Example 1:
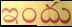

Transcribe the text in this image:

ఇందు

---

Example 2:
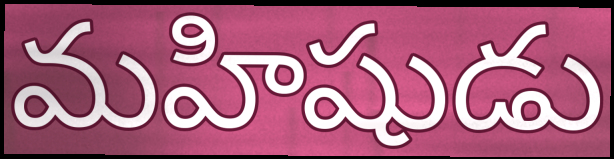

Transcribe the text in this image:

మహిషుడు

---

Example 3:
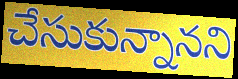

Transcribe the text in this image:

చేసుకున్నానని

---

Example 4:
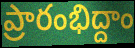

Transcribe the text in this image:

ప్రారంభిద్దాం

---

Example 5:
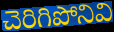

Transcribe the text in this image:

చెరిగిపోనివి